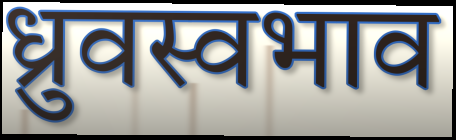
ध्रुवस्वभाव